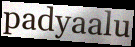
padyaalu